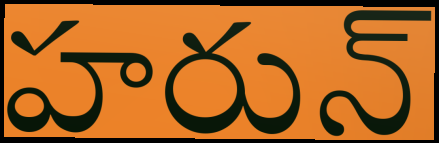
హరున్